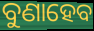
ବୁଣାହେବ